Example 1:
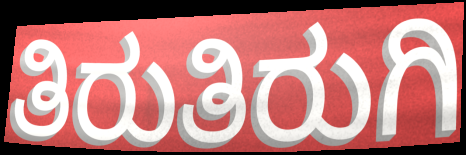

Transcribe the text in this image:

ತಿರುತಿರುಗಿ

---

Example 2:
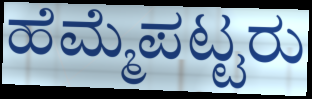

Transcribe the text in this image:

ಹೆಮ್ಮೆಪಟ್ಟರು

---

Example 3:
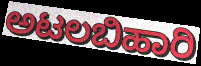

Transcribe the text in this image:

ಅಟಲಬಿಹಾರಿ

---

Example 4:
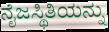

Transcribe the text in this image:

ನೈಜಸ್ಥಿತಿಯನ್ನು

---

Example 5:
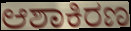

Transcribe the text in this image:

ಆಶಾಕಿರಣ